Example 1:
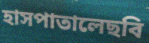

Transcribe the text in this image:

হাসপাতালেছবি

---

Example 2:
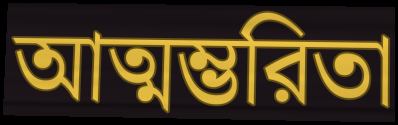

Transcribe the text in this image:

আত্মম্ভরিতা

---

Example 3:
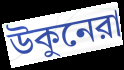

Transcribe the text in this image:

উকুনেরা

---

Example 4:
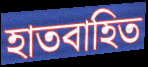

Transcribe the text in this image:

হাতবাহিত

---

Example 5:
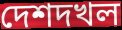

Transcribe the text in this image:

দেশদখল